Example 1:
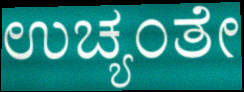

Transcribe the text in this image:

ಉಚ್ಯಂತೇ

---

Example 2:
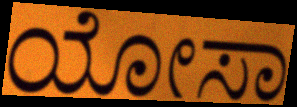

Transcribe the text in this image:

ಯೋಸಾ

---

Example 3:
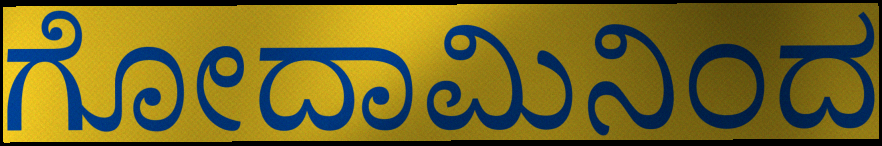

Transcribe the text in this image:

ಗೋದಾಮಿನಿಂದ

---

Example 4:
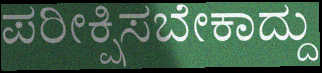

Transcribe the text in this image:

ಪರೀಕ್ಷಿಸಬೇಕಾದ್ದು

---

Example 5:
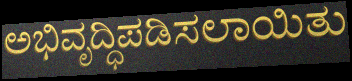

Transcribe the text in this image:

ಅಭಿವೃದ್ಧಿಪಡಿಸಲಾಯಿತು